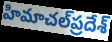
హిమాచల్‌ప్రదేశ్